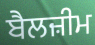
ਬੈਲਜ਼ੀਮ